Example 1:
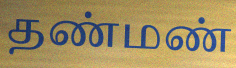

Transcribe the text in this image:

தண்மண்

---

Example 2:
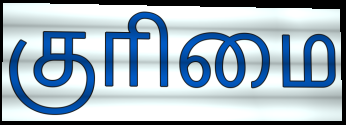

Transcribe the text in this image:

குரிமை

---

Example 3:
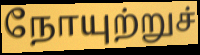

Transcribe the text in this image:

நோயுற்றுச்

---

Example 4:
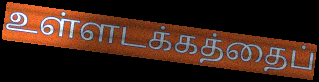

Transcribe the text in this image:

உள்ளடக்கத்தைப்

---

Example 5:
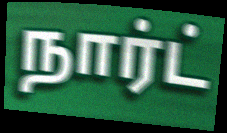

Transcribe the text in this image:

நார்ட்